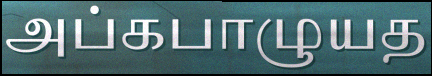
அப்கபாழுயத